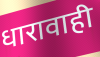
धारावाही